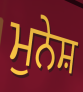
ਮੁਨੇਸ਼